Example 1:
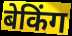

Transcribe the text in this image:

बेकिंग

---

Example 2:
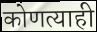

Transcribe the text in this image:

कोणत्याही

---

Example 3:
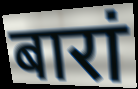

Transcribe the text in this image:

बारां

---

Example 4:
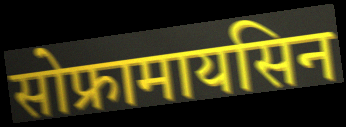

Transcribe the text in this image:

सोफ्रामायसिन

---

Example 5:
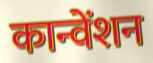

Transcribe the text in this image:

कान्वेंशन